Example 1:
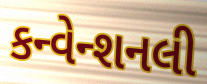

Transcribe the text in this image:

કન્વેન્શનલી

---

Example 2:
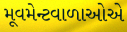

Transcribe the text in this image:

મૂવમેન્ટવાળાઓએ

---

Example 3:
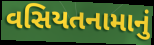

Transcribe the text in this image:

વસિયતનામાનું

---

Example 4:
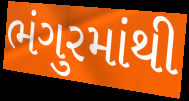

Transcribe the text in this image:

ભંગુરમાંથી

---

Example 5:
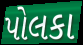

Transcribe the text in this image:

પોલકા